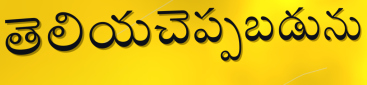
తెలియచెప్పబడును